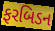
ફરબિડન